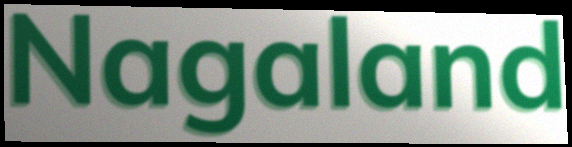
Nagaland